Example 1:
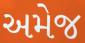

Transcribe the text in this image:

અમેજ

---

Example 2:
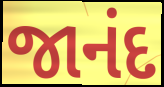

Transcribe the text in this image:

જાનંદ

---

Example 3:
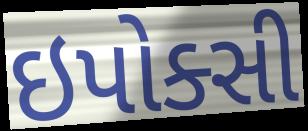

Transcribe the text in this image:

ઇપોક્સી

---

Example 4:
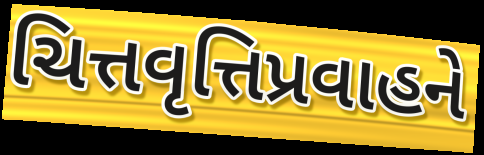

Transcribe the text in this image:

ચિત્તવૃત્તિપ્રવાહને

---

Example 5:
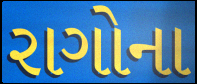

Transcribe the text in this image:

રાગોના